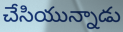
చేసియున్నాడు